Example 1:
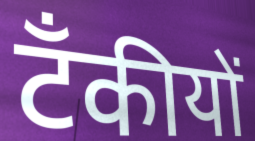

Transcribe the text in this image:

टँकीयों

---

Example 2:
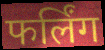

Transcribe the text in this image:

फर्लिंग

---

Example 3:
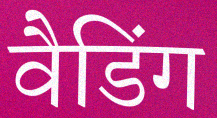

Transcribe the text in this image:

वैडिंग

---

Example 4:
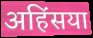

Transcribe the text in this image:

अहिंसया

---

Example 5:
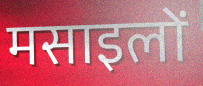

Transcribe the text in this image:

मसाइलों